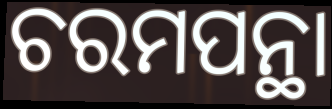
ଚରମପନ୍ଥା